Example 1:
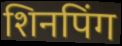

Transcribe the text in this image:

शिनपिंग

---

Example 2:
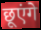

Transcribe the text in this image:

छूएंगे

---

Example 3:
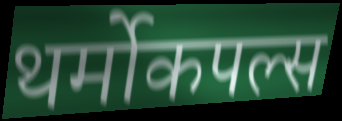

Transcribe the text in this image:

थर्मोकपल्स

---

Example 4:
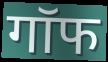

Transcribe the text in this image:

गॉफ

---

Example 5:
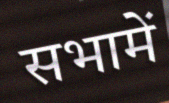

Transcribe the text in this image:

सभामें